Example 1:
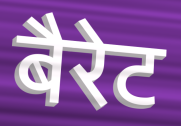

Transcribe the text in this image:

बैरेट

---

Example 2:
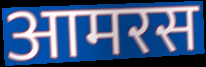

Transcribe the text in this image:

आमरस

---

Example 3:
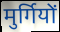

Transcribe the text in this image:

मुर्गियों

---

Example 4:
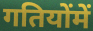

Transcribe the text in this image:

गतियोंमें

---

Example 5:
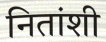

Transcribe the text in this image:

नितांशी